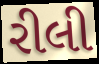
રીલી